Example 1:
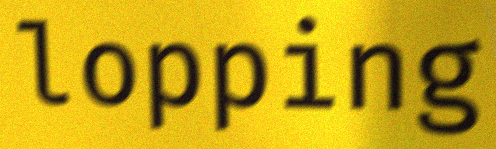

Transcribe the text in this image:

lopping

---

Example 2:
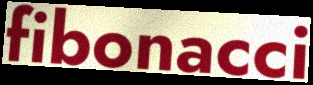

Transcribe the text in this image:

fibonacci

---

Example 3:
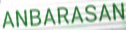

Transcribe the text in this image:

ANBARASAN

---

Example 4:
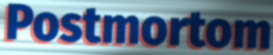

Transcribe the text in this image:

Postmortom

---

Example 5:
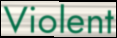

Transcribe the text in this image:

Violent